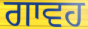
ਗਾਵਹ